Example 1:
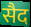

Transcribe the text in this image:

सैद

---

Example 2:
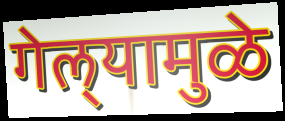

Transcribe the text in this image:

गेल्यामुळे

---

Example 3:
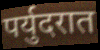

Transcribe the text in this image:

पर्युदरात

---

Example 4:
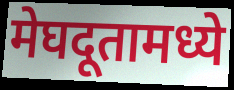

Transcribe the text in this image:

मेघदूतामध्ये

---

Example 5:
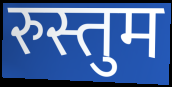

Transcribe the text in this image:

रुस्तुम